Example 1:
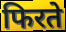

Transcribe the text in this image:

फिरते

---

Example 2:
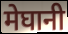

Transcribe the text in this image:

मेघानी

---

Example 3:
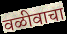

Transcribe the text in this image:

वळीवाचा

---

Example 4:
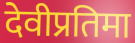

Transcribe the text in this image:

देवीप्रतिमा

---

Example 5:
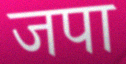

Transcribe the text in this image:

जपा